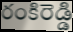
రంకిరెడ్డి